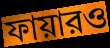
ফায়ারও